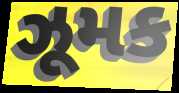
ઝૂમક